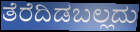
ತೆರೆದಿಡಬಲ್ಲದು